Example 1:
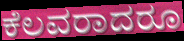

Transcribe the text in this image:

ಕೆಲವರಾದರೂ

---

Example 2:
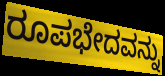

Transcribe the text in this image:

ರೂಪಭೇದವನ್ನು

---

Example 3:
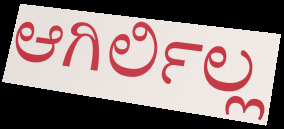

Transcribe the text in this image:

ಆಗಿರ್ಲಿಲ್ಲ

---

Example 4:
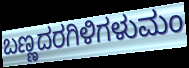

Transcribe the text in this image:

ಬಣ್ಣದರಗಿಳಿಗಳುಮಂ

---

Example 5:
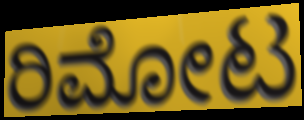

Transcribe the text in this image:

ರಿಮೋಟ